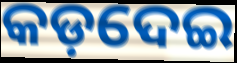
କଡ଼ଦେଇ